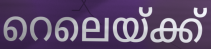
റെലെയ്ക്ക്